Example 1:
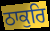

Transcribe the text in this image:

ਠਾਕੁਰਿ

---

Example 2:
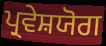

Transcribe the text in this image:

ਪ੍ਰਵੇਸ਼ਯੋਗ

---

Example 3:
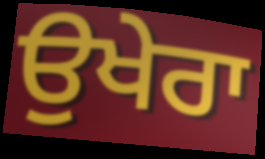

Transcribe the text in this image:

ਉਖੇਰਾ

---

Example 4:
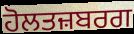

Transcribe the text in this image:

ਹੋਲਤਜ਼ਬਰਗ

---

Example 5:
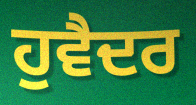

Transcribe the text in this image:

ਹੁਵੈਦਰ